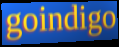
goindigo